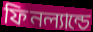
ফিনল্যান্ডে